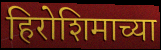
हिरोशिमाच्या